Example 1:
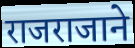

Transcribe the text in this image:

राजराजाने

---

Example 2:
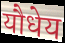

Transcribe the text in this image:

यौधेय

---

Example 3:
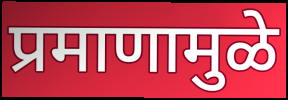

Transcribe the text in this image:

प्रमाणामुळे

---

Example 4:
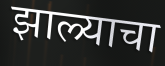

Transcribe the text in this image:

झाल्याचा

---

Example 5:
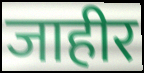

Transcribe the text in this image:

जाहीर